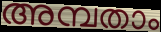
അമ്പതാം